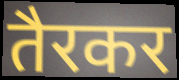
तैरकर